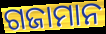
ଗଜାମାନ